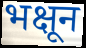
भक्षून